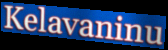
Kelavaninu